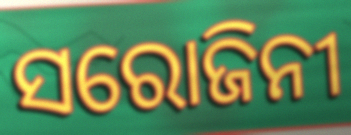
ସରୋଜିନୀ